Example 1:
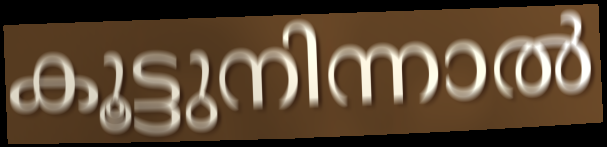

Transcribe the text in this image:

കൂട്ടുനിന്നാൽ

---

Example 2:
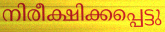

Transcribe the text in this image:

നിരീക്ഷിക്കപ്പെട്ടു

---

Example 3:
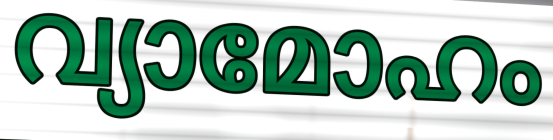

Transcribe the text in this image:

വ്യാമോഹം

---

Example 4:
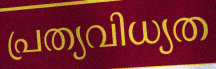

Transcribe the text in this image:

പ്രത്യവിധ്യത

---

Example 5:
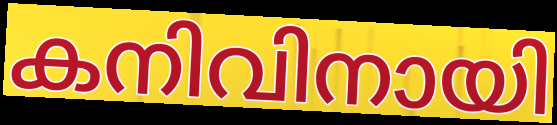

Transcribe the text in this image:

കനിവിനായി